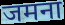
जमना